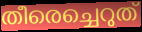
തീരെച്ചെറുത്